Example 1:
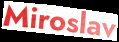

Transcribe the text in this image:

Miroslav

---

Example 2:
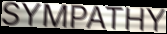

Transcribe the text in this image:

SYMPATHY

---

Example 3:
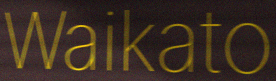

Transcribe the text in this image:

Waikato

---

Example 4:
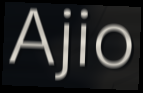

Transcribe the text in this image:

Ajio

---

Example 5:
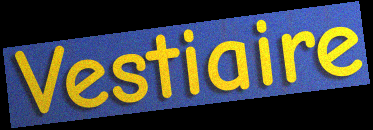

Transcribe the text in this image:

Vestiaire